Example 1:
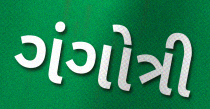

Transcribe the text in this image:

ગંગોત્રી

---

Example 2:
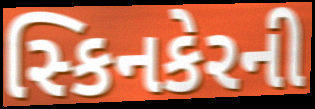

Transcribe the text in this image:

સ્કિનકેરની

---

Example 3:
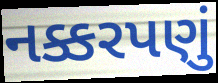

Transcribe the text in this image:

નક્કરપણું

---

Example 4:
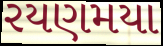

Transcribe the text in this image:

રયણમયા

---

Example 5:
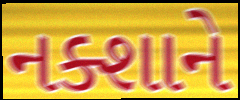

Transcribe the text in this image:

નક્શાને